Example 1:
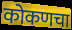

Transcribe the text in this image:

कोकणचा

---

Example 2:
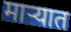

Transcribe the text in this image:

माऱ्यात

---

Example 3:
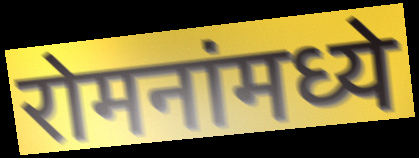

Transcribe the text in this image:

रोमनांमध्ये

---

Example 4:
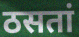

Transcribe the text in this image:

ठसतां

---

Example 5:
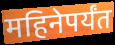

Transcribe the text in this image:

महिनेपर्यंत